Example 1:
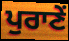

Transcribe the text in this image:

ਪੁਰਾਣੇਂ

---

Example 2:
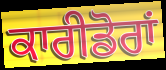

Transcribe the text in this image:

ਕਾਰੀਡੋਰਾਂ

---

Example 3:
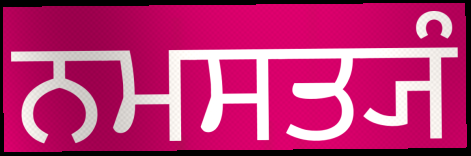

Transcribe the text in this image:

ਨਮਸਤ੍ਯੰ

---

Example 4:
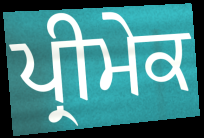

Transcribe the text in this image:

ਪ੍ਰੀਮੇਕ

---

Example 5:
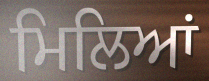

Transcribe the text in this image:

ਮਿਲਿਆਂ